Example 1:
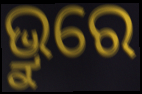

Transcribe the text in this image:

ଭ୍ରୁରେ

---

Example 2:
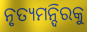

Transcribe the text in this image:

ନୃତ୍ୟମନ୍ଦିରକୁ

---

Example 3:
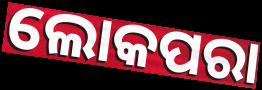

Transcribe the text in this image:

ଲୋକପରା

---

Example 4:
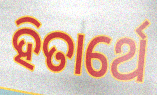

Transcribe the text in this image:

ହିତାର୍ଥେ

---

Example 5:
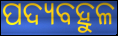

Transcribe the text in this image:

ପଦ୍ୟବହୁଳ